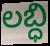
లబ్ధి